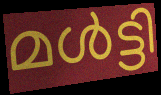
മൾട്ടി